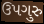
ઉપગુરુ